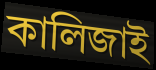
কালিজাই